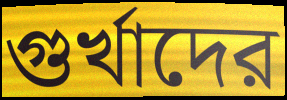
গুর্খাদের